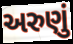
અરુણું